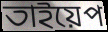
তাইয়েপ